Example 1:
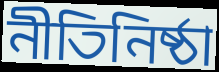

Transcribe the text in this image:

নীতিনিষ্ঠা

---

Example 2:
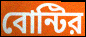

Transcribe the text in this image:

বোন্টির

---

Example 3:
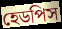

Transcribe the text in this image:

হেডপিস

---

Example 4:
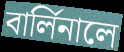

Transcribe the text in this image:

বার্লিনালে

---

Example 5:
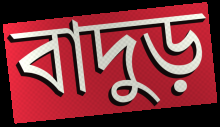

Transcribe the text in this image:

বাদুড়